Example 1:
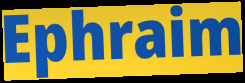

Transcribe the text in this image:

Ephraim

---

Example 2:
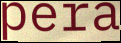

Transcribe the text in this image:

pera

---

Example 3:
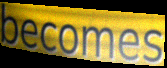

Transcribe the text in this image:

becomes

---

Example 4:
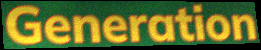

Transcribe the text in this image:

Generation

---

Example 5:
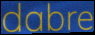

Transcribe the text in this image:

dabre